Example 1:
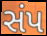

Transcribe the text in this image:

સંપ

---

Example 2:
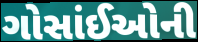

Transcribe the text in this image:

ગોસાંઈઓની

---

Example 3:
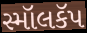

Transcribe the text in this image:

સ્મૉલકૅપ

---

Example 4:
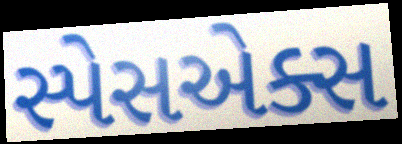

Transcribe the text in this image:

સ્પેસએક્સ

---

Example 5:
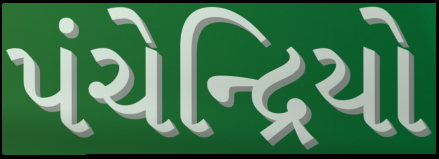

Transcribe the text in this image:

પંચેન્દ્રિયો